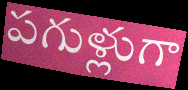
పగుళ్లుగా